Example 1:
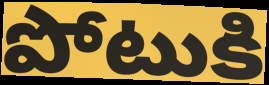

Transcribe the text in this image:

పోటుకి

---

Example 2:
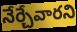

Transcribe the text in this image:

నేర్చేవారని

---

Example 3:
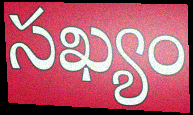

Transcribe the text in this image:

సఖ్యం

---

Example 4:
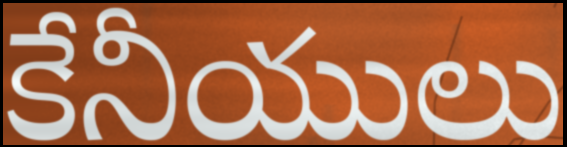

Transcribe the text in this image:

కేనీయులు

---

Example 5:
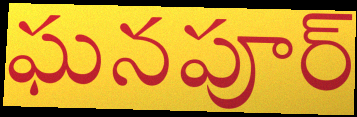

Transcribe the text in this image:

ఘనపూర్